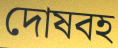
দোষবহ